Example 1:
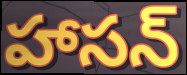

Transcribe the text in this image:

హాసన్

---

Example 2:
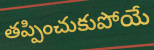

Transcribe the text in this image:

తప్పించుకుపోయే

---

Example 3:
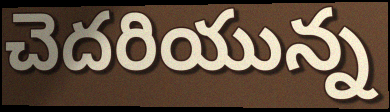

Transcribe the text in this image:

చెదరియున్న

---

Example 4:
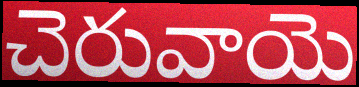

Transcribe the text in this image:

చెరువాయె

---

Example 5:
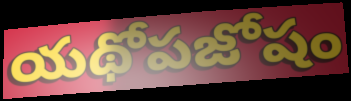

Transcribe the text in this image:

యథోపజోషం